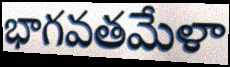
భాగవతమేళా